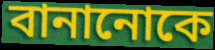
বানানোকে